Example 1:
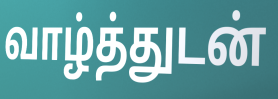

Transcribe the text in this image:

வாழ்த்துடன்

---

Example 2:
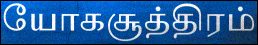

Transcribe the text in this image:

யோகசூத்திரம்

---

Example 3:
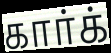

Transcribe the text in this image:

கார்க்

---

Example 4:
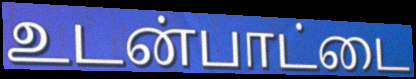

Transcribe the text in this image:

உடன்பாட்டை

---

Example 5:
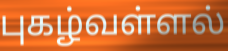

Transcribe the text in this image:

புகழ்வள்ளல்